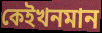
কেইখনমান